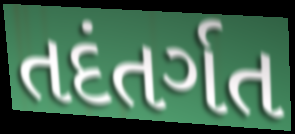
તદંતર્ગત